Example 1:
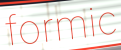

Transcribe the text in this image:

formic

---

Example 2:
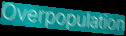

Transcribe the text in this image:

Overpopulation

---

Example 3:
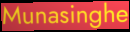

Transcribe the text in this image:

Munasinghe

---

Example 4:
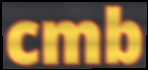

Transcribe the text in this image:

cmb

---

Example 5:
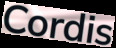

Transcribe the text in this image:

Cordis